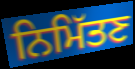
ਨਿਮਿੱਤਣ